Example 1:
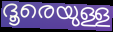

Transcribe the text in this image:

ദൂരെയുള്ള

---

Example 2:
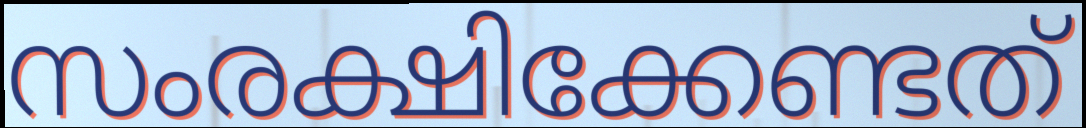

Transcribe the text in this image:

സംരക്ഷിക്കേണ്ടത്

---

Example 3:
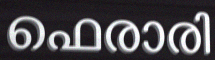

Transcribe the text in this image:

ഫെരാരി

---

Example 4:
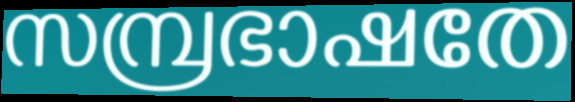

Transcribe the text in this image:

സമ്പ്രഭാഷതേ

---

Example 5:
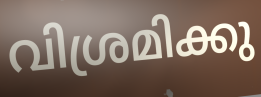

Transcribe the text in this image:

വിശ്രമിക്കു